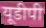
यूडीपी